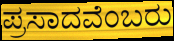
ಪ್ರಸಾದವೆಂಬರು